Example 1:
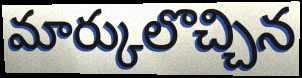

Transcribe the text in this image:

మార్కులొచ్చిన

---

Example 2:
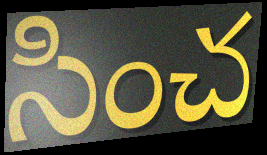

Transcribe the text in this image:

సించ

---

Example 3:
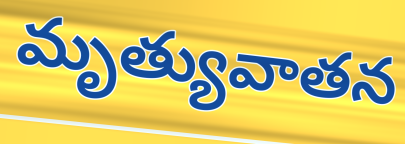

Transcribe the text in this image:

మృత్యువాతన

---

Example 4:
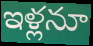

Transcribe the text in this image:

ఇళ్లనూ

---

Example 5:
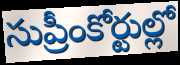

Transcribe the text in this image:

సుప్రీంకోర్టుల్లో